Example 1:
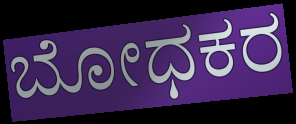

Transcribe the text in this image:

ಬೋಧಕರ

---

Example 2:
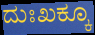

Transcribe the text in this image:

ದುಃಖಕ್ಕೂ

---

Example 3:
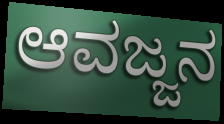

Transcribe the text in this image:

ಆವಜ್ಜನ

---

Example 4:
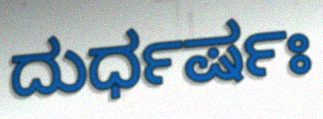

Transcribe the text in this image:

ದುರ್ಧರ್ಷಃ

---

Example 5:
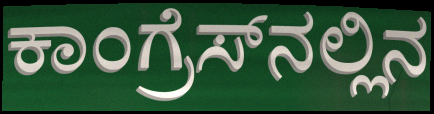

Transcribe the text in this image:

ಕಾಂಗ್ರೆಸ್‌ನಲ್ಲಿನ